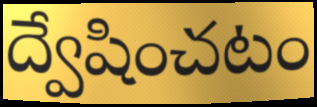
ద్వేషించటం